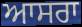
ਆਸਰਾ